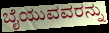
ಬೈಯುವವರನ್ನು